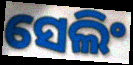
ସେଲିଂ